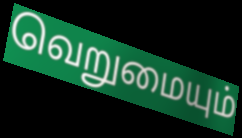
வெறுமையும்